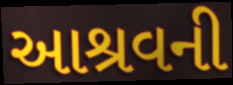
આશ્રવની